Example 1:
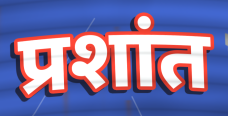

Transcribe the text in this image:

प्रशांत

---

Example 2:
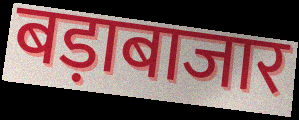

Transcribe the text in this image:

बड़ाबाजार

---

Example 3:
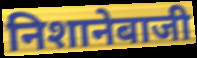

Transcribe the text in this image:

निशानेबाजी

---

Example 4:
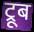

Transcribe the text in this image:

ट्रूब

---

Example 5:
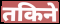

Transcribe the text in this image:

तकिने